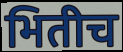
भितीच